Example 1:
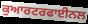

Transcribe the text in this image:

ਕੁਆਰਟਰਫਾਈਨਲ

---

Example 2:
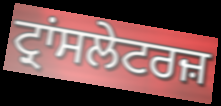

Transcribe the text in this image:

ਟ੍ਰਾਂਸਲੇਟਰਜ਼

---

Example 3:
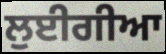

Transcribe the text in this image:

ਲੁਈਗੀਆ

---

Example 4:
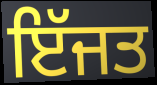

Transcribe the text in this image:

ਇੱਜਤ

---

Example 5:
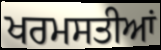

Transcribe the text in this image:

ਖਰਮਸਤੀਆਂ